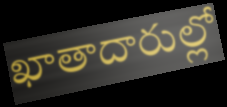
ఖాతాదారుల్లో